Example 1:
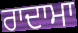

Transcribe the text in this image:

ਰਾਦਾਮਾ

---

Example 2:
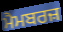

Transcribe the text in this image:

ਮੈਮਬਰਜ਼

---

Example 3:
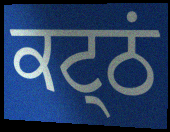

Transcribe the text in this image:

ਕਟ੍ਠਂ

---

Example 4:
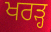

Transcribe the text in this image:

ਖਰੜ੍ਹ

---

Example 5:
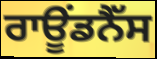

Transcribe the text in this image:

ਰਾਊਂਡਨੈੱਸ